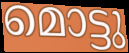
മൊട്ടു